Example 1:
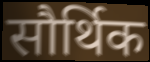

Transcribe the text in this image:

सौर्थिक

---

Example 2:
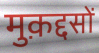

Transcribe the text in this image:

मुक़द्दसों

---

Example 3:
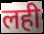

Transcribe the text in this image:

लही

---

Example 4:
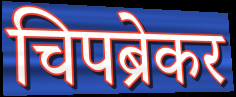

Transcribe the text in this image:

चिपब्रेकर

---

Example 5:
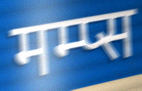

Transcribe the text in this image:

मम्प्स